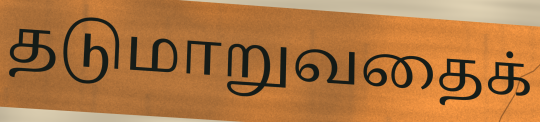
தடுமாறுவதைக்